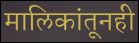
मालिकांतूनही